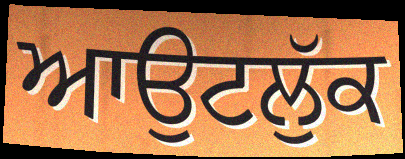
ਆਉਟਲੁੱਕ